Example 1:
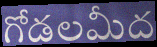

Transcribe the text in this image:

గోడలమీద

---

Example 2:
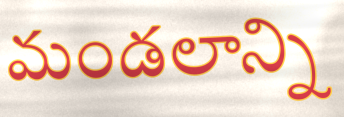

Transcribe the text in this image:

మండలాన్ని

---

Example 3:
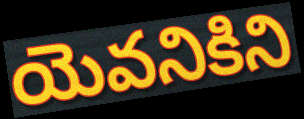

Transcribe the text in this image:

యెవనికిని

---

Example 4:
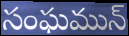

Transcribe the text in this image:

సంఘమున్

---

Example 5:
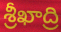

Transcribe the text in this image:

శ్రీఖాద్రి